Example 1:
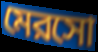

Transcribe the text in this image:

মেরসো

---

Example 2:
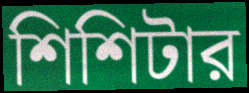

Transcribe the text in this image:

শিশিটার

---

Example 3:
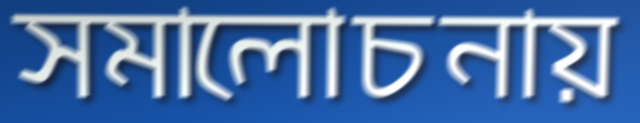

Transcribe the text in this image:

সমালোচনায়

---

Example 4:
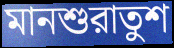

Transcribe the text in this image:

মানশুরাতুশ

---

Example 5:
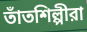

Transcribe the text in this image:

তাঁতশিল্পীরা